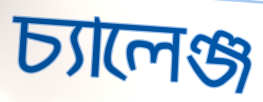
চ্যালেঞ্জ